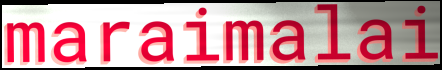
maraimalai